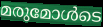
മരുമോൾടെ